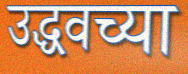
उद्धवच्या